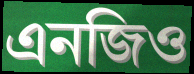
এনজিও